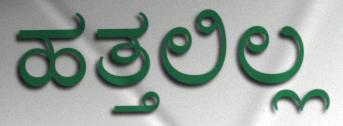
ಹತ್ತಲಿಲ್ಲ